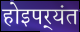
होइपर्यंत